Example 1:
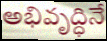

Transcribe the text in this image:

అభివృద్ధినే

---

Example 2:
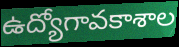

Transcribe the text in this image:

ఉద్యోగావకాశాల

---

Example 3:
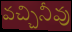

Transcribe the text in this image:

వచ్చినీవు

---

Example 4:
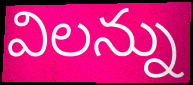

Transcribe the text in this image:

విలన్ను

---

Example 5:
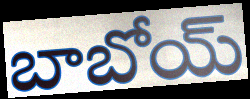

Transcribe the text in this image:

బాబోయ్